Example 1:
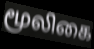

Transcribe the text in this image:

மூலிகை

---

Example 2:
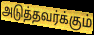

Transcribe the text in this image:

அடுத்தவர்க்கும்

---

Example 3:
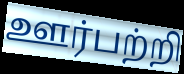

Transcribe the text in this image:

ஊர்பற்றி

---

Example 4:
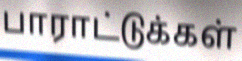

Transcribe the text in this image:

பாராட்டுக்கள்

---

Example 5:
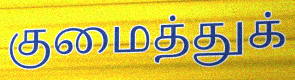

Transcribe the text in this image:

குமைத்துக்